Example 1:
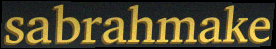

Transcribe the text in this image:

sabrahmake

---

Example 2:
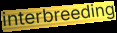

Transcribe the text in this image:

interbreeding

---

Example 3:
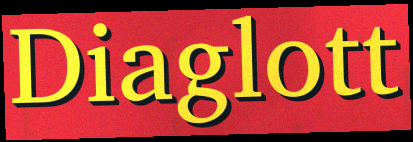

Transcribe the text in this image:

Diaglott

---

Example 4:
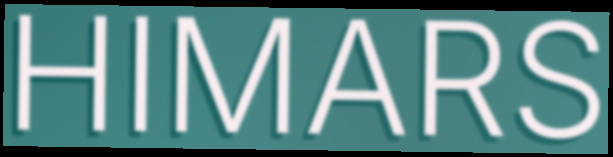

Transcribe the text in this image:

HIMARS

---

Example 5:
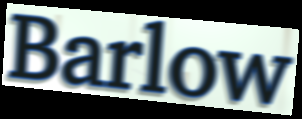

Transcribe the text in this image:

Barlow